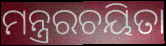
ମନ୍ତ୍ରରଚୟିତା